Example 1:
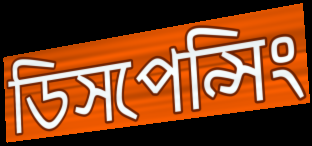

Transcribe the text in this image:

ডিসপেন্সিং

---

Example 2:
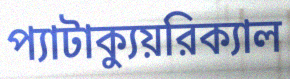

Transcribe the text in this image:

প্যাটাক্যুয়রিক্যাল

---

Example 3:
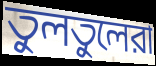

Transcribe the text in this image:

তুলতুলেরা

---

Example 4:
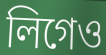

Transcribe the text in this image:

লিগেও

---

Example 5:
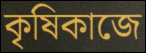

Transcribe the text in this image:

কৃষিকাজে